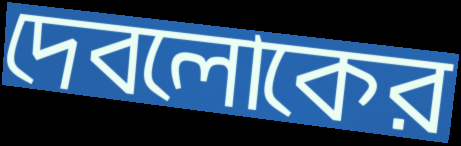
দেবলোকের